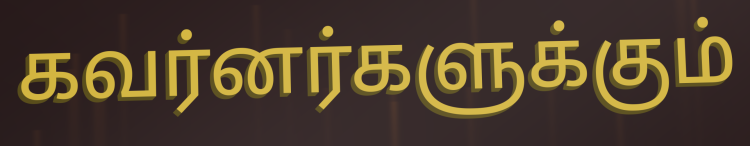
கவர்னர்களுக்கும்